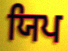
ਯਿਪ